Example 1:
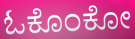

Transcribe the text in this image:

ಓಕೊಂಕೋ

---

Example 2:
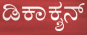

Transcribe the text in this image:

ಡಿಕಾಕ್ಶನ್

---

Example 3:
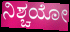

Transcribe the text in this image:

ನಿಶ್ಚಯೋ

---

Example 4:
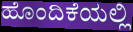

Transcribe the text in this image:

ಹೊಂದಿಕೆಯಲ್ಲಿ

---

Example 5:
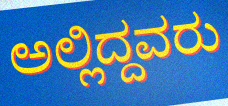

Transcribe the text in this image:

ಅಲ್ಲಿದ್ದವರು